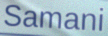
Samani